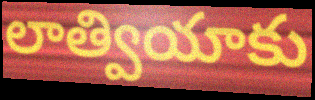
లాత్వియాకు